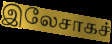
இலேசாகச்